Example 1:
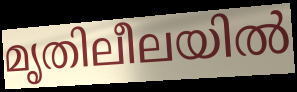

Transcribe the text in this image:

മൃതിലീലയിൽ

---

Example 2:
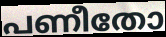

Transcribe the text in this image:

പണീതോ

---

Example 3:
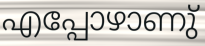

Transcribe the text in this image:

എപ്പോഴാണു്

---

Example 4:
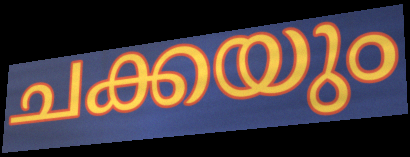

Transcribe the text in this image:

ചക്കയും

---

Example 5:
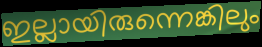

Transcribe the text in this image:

ഇല്ലായിരുന്നെങ്കിലും